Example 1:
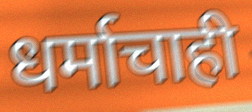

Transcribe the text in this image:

धर्माचाही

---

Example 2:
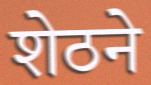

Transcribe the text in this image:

शेठने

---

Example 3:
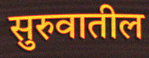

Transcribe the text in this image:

सुरुवातील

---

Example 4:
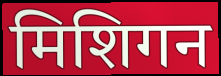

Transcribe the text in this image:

मिशिगन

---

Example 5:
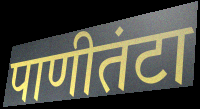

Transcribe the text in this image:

पाणीतंटा